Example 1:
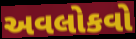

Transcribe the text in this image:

અવલોકવો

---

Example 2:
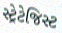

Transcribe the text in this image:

સ્ટ્રેટેજિસ્ટ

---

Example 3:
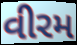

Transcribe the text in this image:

વીરમ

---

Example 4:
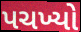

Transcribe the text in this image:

પચખ્યો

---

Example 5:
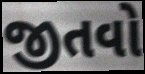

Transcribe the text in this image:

જીતવો